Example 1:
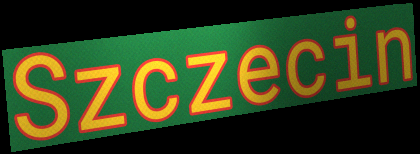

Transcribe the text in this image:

Szczecin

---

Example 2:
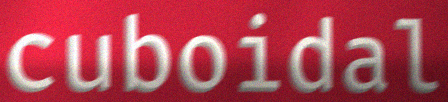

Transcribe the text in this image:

cuboidal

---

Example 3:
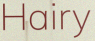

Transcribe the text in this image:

Hairy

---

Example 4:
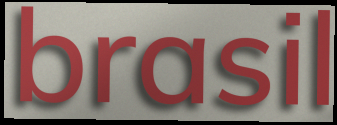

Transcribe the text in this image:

brasil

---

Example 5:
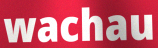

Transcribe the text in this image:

wachau